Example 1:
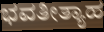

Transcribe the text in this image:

ಭವತೀತ್ಯಾಹ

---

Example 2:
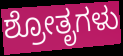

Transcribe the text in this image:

ಶ್ರೋತೃಗಳು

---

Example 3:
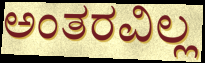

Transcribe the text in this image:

ಅಂತರವಿಲ್ಲ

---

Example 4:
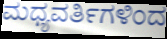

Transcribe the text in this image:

ಮಧ್ಯವರ್ತಿಗಳಿಂದ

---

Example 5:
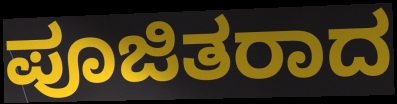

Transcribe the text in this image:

ಪೂಜಿತರಾದ